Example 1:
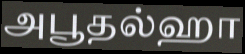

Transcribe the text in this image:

அபூதல்ஹா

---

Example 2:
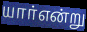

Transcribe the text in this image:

யார்என்று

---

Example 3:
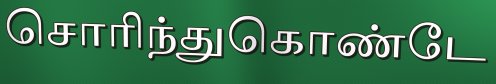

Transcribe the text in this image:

சொரிந்துகொண்டே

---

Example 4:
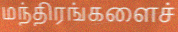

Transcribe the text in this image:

மந்திரங்களைச்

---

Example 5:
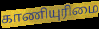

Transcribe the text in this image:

காணியுரிமை